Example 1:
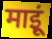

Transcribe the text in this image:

माइूं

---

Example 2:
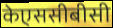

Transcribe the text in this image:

केएससीबीसी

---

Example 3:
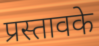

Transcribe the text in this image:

प्रस्तावके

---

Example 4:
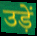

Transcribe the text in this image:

उड़ें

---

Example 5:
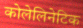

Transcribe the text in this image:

कोलेलिनेटिक